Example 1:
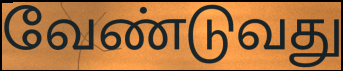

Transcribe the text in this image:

வேண்டுவது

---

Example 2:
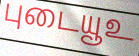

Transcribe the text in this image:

புடையூஉ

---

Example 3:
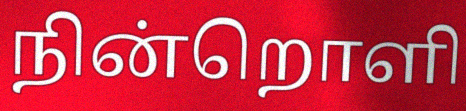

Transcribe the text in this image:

நின்றொளி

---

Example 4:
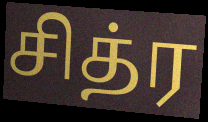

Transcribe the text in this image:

சித்ர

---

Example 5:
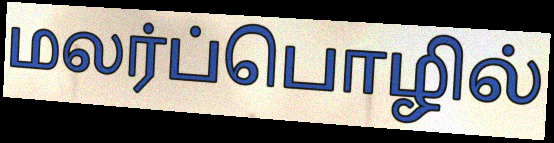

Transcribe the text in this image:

மலர்ப்பொழில்